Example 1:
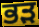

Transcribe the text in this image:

ਭੜ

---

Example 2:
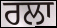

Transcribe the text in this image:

ਰਲਾ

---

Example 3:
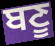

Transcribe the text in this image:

ਬਣੂ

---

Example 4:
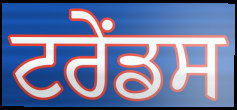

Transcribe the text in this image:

ਟਰੇਂਡਸ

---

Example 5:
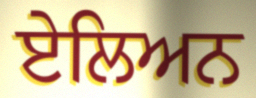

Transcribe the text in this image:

ਏਲਿਅਨ